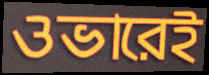
ওভারেই